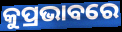
କୁପ୍ରଭାବରେ